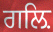
ਗਲ਼ਿ